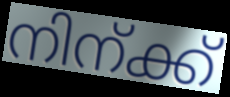
നിന്ക്ക്